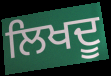
ਲਿਖਦੂ